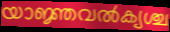
യാജ്ഞവൽക്യശ്ച